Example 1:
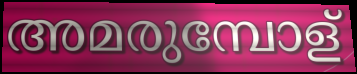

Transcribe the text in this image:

അമരുമ്പോള്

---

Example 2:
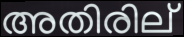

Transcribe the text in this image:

അതിരില്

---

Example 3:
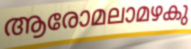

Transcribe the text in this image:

ആരോമലാമഴകു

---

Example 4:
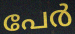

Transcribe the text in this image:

പേർ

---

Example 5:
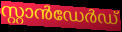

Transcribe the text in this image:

സ്റ്റാൻഡേർഡ്